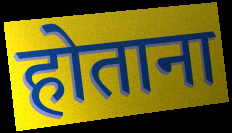
होताना